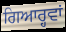
ਗਿਆਰ੍ਹਵਾਂ